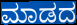
ಮಾಡದ